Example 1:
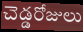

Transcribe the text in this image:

చెడ్డరోజులు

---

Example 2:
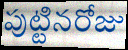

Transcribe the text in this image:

పుట్టినరోజు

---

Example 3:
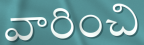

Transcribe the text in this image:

వారించి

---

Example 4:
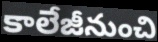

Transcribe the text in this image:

కాలేజీనుంచి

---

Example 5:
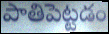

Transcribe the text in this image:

పాతిపెట్టడం